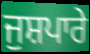
ਜੁਸ਼ਪਾਰੇ